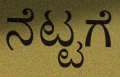
ನೆಟ್ಟಗೆ